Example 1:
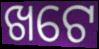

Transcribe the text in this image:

ଖଟେ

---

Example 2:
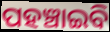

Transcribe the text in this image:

ପହଞ୍ଚାଇବି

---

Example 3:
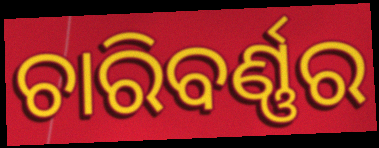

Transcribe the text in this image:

ଚାରିବର୍ଣ୍ଣର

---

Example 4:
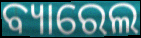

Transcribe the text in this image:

ବ୍ୟାରେଲ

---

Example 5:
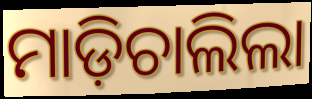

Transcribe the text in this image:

ମାଡ଼ିଚାଲିଲା